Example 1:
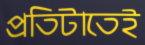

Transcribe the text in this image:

প্রতিটাতেই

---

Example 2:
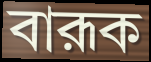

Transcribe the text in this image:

বারূক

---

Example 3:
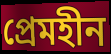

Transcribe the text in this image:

প্রেমহীন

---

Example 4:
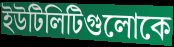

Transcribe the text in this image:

ইউটিলিটিগুলোকে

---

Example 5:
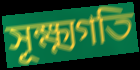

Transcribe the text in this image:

সূক্ষ্মগতি